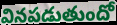
వినపడుతుందో